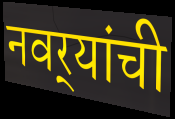
नवर्यांची